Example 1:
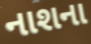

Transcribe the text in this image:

નાશના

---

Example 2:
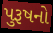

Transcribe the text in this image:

પુરૂષનો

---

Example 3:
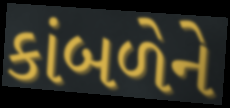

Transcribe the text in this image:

કાંબળેને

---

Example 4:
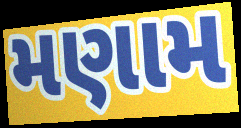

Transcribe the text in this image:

મણામ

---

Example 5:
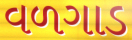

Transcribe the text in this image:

વળગાડ